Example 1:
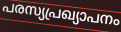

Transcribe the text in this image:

പരസ്യപ്രഖ്യാപനം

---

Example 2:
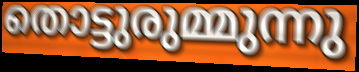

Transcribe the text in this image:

തൊട്ടുരുമ്മുന്നു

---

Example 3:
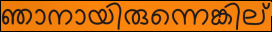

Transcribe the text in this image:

ഞാനായിരുന്നെങ്കില്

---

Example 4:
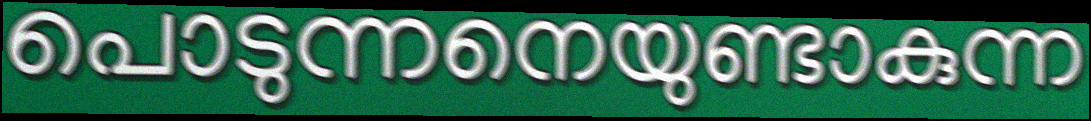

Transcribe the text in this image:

പൊടുന്നനെയുണ്ടാകുന്ന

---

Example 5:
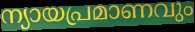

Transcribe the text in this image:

ന്യായപ്രമാണവും